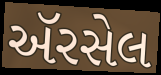
ઍરસેલ